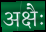
अक्षैः